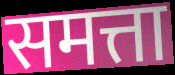
समत्ता